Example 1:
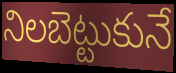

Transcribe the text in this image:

నిలబెట్టుకునే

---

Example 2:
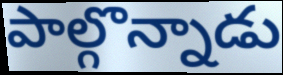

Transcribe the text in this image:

పాల్గొన్నాడు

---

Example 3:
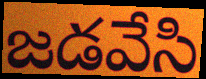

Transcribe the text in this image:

జడవేసి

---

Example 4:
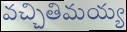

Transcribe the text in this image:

వచ్చితిమయ్య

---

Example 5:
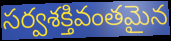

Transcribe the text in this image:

సర్వశక్తివంతమైన